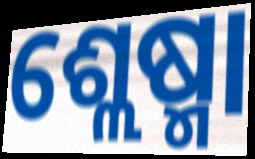
ଶ୍ଲେଷ୍ମା